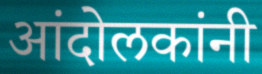
आंदोलकांनी